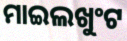
ମାଇଲଖୁଂଟ